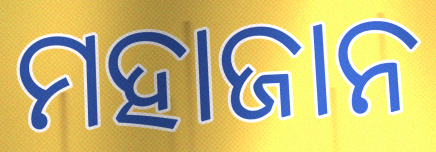
ମହାଜାନ